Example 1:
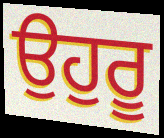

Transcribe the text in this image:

ਉਹੁਰੂ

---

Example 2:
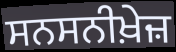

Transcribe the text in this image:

ਸਨਸਨੀਖ਼ੇਜ਼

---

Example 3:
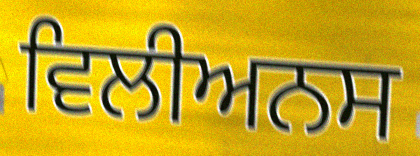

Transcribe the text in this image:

ਵਿਲੀਅਨਸ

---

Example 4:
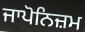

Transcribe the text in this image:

ਜਾਪੋਨਿਜ਼ਮ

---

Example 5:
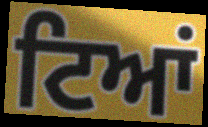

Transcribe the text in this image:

ਟਿਆਂ